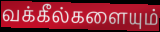
வக்கீல்களையும்